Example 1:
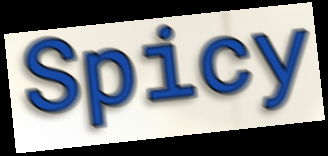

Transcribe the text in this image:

Spicy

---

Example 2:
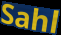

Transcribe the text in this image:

Sahl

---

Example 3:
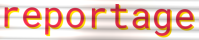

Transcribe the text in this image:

reportage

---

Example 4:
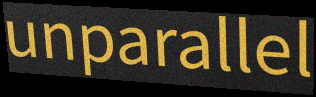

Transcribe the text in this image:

unparallel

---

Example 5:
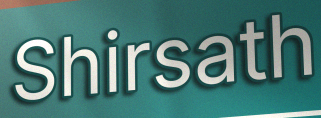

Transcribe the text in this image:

Shirsath